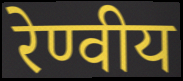
रेण्वीय